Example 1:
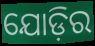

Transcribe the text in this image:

ଯୋଡ଼ିର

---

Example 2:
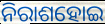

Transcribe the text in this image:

ନିରାଶହୋଇ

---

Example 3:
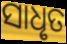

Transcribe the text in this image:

ସାଧୃତ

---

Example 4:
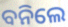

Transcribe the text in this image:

ବନିଲେ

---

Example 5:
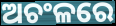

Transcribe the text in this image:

ଅଚଂଳରେ